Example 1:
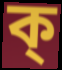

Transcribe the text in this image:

ক্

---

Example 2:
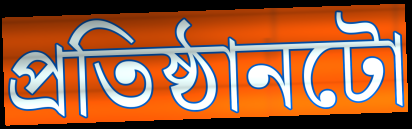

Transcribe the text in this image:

প্ৰতিষ্ঠানটো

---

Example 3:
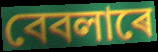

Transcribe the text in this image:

বেবলাৰে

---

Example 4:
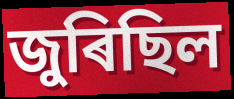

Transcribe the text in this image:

জুৰিছিল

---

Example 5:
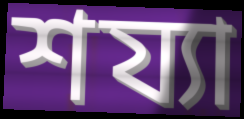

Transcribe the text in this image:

শয্যা